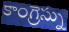
కాంగ్రెస్ను